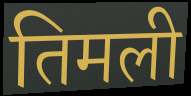
तिमली